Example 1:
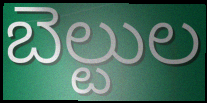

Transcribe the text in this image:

బెల్టుల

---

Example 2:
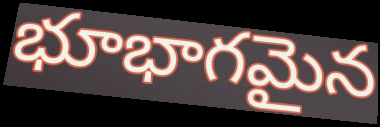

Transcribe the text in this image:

భూభాగమైన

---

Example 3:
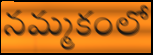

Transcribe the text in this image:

నమ్మకంలో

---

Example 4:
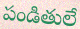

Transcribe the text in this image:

పండితులే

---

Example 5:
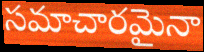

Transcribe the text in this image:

సమాచారమైనా